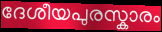
ദേശീയപുരസ്കാരം